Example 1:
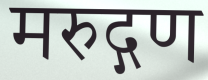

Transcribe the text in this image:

मरुद्गण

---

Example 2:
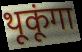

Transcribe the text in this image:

थूकूंगा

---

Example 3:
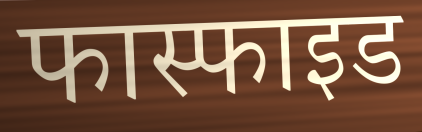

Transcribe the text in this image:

फास्फाइड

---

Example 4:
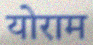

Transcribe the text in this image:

योराम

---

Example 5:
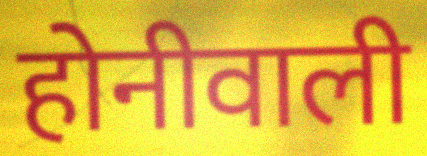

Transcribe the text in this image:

होनीवाली